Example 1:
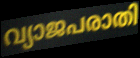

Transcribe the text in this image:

വ്യാജപരാതി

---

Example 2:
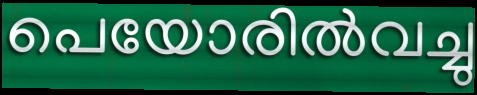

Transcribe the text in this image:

പെയോരിൽവച്ചു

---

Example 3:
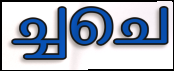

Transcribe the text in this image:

ച്ചചെ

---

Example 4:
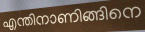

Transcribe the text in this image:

എന്തിനാണിങ്ങിനെ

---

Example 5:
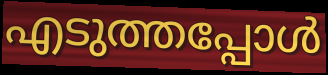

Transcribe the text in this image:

എടുത്തപ്പോൾ